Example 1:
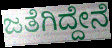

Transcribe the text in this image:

ಜತೆಗಿದ್ದೇನೆ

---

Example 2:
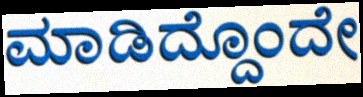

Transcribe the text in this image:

ಮಾಡಿದ್ದೊಂದೇ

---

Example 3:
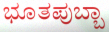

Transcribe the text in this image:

ಭೂತಪುಬ್ಬಾ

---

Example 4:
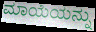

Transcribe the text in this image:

ಮಾಯೆಯನ್ನು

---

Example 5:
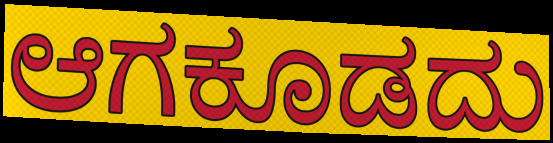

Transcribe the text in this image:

ಆಗಕೂಡದು